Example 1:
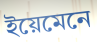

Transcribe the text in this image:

ইয়েমেনে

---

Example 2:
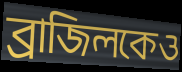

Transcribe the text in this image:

ব্রাজিলকেও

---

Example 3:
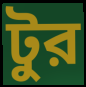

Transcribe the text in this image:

টুর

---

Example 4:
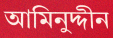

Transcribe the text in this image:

আমিনুদ্দীন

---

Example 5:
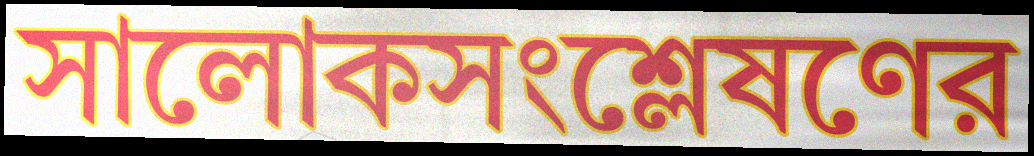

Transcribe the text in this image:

সালোকসংশ্লেষণের